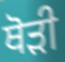
ਥੋੜੀ